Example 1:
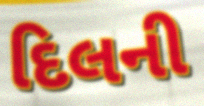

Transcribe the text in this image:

દિલની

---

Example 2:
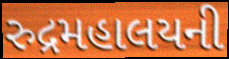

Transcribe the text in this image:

રુદ્રમહાલયની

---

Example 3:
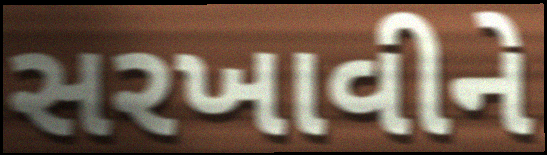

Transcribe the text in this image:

સરખાવીને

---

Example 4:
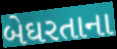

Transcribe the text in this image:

બેઘરતાના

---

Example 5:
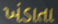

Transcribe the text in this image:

ખંડાતા